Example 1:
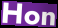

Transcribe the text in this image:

Hon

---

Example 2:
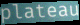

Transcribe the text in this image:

plateau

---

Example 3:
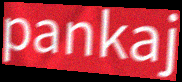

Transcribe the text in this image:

pankaj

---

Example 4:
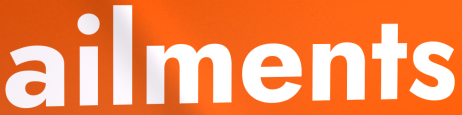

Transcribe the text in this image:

ailments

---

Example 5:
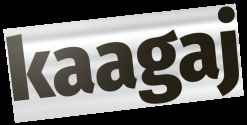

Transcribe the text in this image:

kaagaj